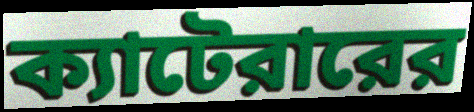
ক্যাটেরারের